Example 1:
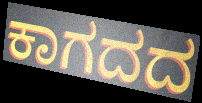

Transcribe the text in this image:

ಕಾಗದದ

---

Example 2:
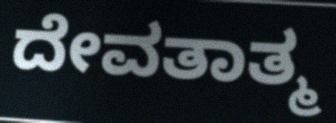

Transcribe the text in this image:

ದೇವತಾತ್ಮ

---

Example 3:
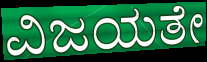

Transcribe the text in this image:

ವಿಜಯತೇ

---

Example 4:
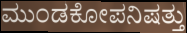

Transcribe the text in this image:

ಮುಂಡಕೋಪನಿಷತ್ತು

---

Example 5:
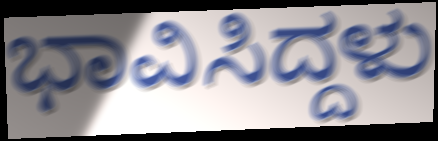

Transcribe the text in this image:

ಭಾವಿಸಿದ್ದಳು